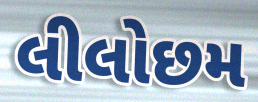
લીલોછમ